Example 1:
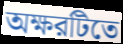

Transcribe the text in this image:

অক্ষরটিতে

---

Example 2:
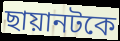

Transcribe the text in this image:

ছায়ানটকে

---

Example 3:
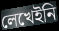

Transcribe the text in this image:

লেখেইনি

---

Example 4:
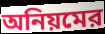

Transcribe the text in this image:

অনিয়মের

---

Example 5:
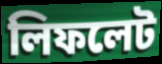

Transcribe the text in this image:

লিফলেট